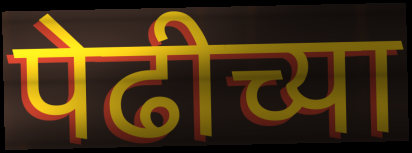
पेढीच्या